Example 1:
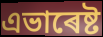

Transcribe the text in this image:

এভাৰেষ্ট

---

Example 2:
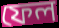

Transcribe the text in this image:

ফেল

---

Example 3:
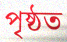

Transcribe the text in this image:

পৃষ্ঠত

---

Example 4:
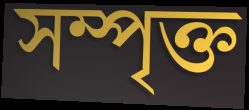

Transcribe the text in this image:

সম্পৃক্ত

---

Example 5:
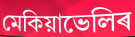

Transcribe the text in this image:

মেকিয়াভেলিৰ